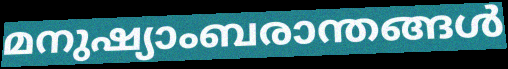
മനുഷ്യാംബരാന്തങ്ങൾ